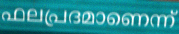
ഫലപ്രദമാണെന്ന്